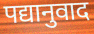
पद्यानुवाद